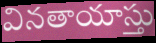
వినతాయాస్తు